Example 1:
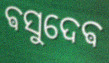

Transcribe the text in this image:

ଵସୁଦେଵ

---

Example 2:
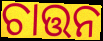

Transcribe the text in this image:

ଚାତ୍ତନ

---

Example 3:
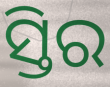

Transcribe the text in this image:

ସ୍ତିର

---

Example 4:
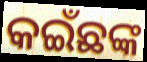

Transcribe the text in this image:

କଇଁଛଙ୍କ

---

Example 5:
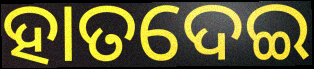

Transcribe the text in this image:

ହାତଦେଇ